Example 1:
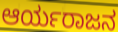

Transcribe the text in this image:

ಆರ್ಯರಾಜನ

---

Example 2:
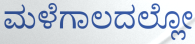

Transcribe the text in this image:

ಮಳೆಗಾಲದಲ್ಲೋ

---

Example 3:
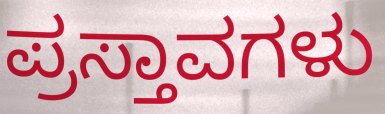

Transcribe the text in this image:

ಪ್ರಸ್ತಾವಗಳು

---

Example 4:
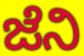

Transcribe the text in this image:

ಜೆನಿ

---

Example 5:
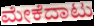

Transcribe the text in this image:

ಮೇಕೆದಾಟು